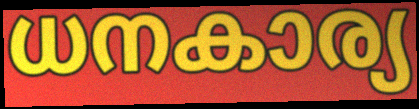
ധനകാര്യ